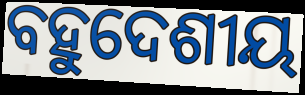
ବହୁଦେଶୀୟ